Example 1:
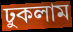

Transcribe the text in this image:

ঢুকলাম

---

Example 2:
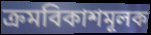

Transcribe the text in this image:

ক্রমবিকাশমূলক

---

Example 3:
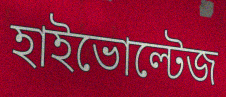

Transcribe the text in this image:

হাইভোল্টেজ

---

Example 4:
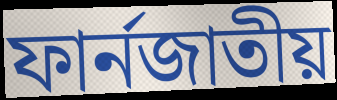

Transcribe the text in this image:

ফার্নজাতীয়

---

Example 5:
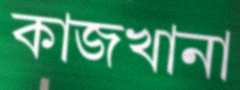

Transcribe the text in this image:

কাজখানা